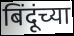
बिंदूंच्या